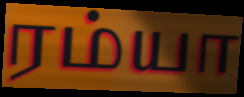
ரம்யா